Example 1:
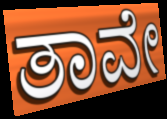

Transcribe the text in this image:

ತಾವೇ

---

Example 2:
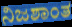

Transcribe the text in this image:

ನಿಜಶಾಂತ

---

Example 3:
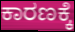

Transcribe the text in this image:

ಕಾರಣಕ್ಕೆ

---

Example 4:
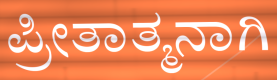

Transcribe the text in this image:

ಪ್ರೀತಾತ್ಮನಾಗಿ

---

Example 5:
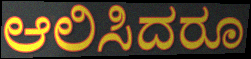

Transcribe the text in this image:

ಆಲಿಸಿದರೂ